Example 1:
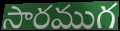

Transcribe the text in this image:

సారముగ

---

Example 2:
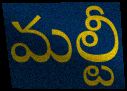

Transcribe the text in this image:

మల్టీ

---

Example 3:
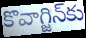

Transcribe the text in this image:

కొవాగ్జిన్‌కు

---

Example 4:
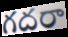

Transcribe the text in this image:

గదరా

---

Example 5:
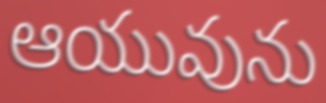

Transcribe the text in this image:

ఆయువును